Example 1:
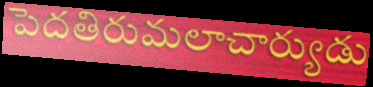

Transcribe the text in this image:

పెదతిరుమలాచార్యుడు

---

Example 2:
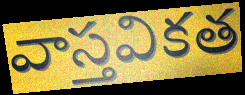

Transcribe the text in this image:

వాస్తవికత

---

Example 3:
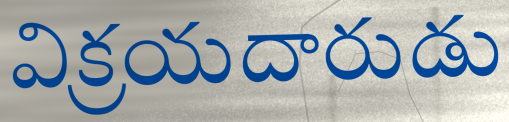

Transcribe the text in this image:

విక్రయదారుడు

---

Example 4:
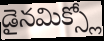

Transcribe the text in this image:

డైనమిక్స్లో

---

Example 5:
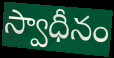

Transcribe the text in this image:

స్వాధీనం